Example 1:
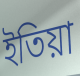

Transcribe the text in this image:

ইতিয়া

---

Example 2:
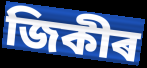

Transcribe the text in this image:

জিকীৰ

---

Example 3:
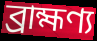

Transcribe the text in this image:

ব্ৰাহ্মণ্য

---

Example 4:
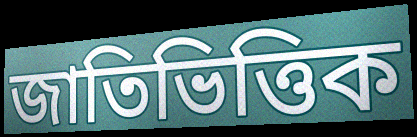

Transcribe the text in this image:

জাতিভিত্তিক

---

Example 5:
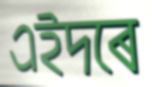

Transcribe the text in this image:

এইদৰে